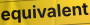
equivalent